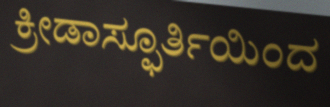
ಕ್ರೀಡಾಸ್ಫೂರ್ತಿಯಿಂದ